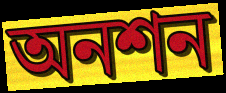
অনশন